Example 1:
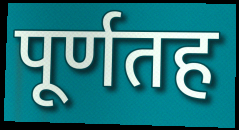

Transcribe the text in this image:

पूर्णतह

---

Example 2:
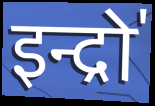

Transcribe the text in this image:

इन्द्रो॑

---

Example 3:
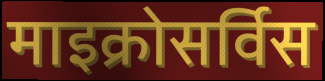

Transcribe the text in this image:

माइक्रोसर्विस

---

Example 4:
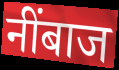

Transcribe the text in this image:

नींबाज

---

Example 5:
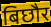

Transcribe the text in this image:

बिछौर